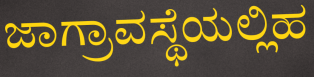
ಜಾಗ್ರಾವಸ್ಥೆಯಲ್ಲಿಹ